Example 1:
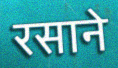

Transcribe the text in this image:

रसाने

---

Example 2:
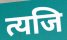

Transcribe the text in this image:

त्यजि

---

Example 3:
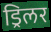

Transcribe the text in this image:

ड्रिलर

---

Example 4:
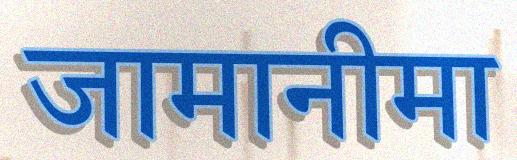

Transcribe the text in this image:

जामानीमा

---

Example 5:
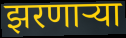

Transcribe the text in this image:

झरणाऱ्या